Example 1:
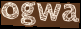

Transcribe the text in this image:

ogwa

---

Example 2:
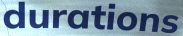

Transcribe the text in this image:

durations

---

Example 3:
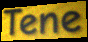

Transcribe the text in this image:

Tene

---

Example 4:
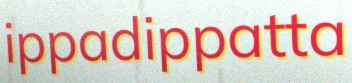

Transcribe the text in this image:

ippadippatta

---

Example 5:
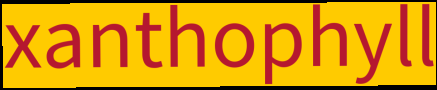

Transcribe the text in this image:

xanthophyll